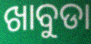
ଖାବୁଡା